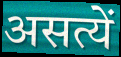
असत्यें